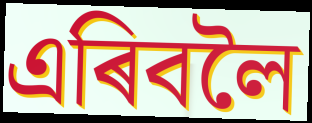
এৰিবলৈ